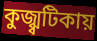
কুজ্ঝ্বটিকায়